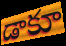
డాకూ